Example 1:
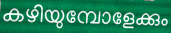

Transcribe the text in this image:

കഴിയുമ്പോളേക്കും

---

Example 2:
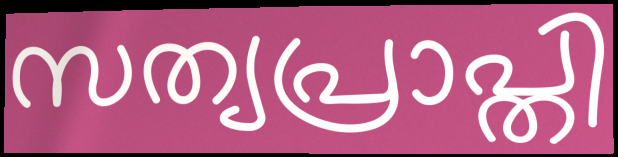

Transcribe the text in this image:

സത്യപ്രാപ്തി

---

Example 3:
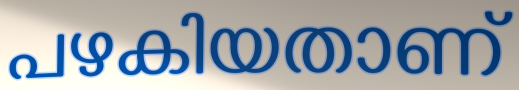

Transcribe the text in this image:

പഴകിയതാണ്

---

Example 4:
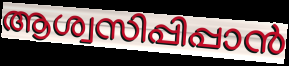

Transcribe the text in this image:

ആശ്വസിപ്പിപ്പാൻ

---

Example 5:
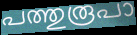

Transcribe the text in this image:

പത്തുരൂപാ